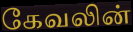
கேவலின்